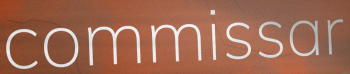
commissar